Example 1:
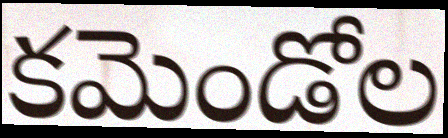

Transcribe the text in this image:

కమెండోల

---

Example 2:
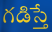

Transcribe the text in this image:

గడిస్తే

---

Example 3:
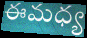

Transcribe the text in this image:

ఈమధ్య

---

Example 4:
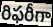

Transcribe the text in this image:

రిఫరీగా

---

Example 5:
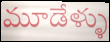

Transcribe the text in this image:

మూడేళ్ళు